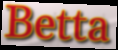
Betta